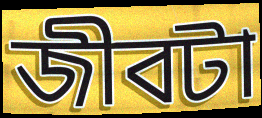
জীবটা